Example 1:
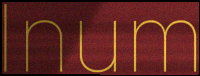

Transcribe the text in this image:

Inum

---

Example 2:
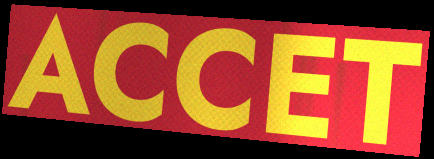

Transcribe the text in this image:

ACCET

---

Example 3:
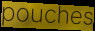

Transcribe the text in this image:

pouches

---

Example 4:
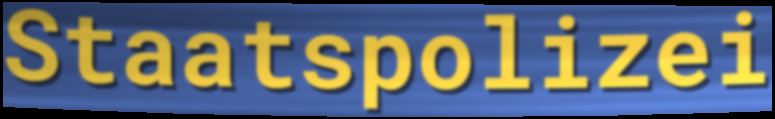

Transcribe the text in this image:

Staatspolizei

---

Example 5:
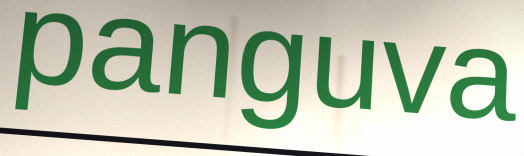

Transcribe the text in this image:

panguva